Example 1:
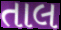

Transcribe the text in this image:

તાલ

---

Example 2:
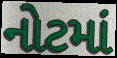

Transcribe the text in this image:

નોટમાં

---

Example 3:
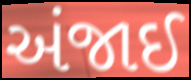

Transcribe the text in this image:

અંજાઈ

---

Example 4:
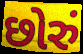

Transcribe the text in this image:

છોરું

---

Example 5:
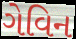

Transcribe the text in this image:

ગેવિન